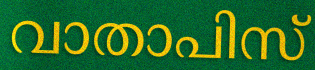
വാതാപിസ്